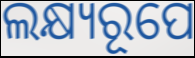
ଲକ୍ଷ୍ୟରୂପେ